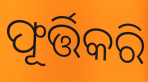
ଫୂର୍ତ୍ତିକରି